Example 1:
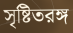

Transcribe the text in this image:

সৃষ্টিতরঙ্গ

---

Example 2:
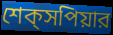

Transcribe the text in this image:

শেক্‌সপিয়ার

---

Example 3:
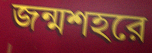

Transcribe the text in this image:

জন্মশহরে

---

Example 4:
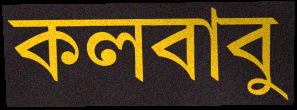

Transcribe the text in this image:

কলবাবু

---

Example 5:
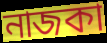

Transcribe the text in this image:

নাজকা